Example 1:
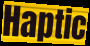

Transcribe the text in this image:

Haptic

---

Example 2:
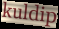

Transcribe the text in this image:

kuldip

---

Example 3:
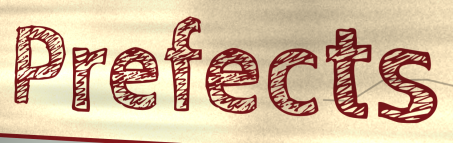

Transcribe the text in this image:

Prefects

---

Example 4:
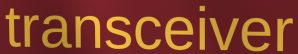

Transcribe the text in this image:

transceiver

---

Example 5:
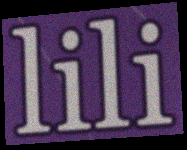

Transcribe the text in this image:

lili